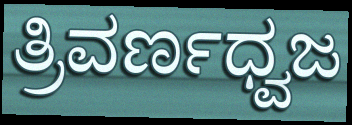
ತ್ರಿವರ್ಣಧ್ವಜ